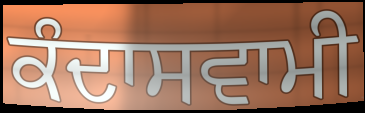
ਕੰਦਾਸਵਾਮੀ